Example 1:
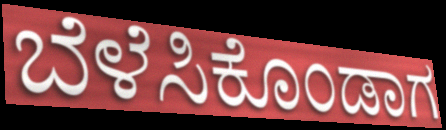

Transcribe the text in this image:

ಬೆಳೆಸಿಕೊಂಡಾಗ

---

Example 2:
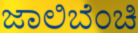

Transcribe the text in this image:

ಜಾಲಿಬೆಂಚಿ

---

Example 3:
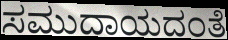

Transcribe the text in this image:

ಸಮುದಾಯದಂತೆ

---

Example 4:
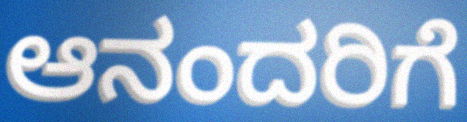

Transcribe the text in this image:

ಆನಂದರಿಗೆ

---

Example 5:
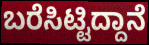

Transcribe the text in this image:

ಬರೆಸಿಟ್ಟಿದ್ದಾನೆ